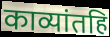
काव्यांतहि